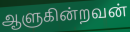
ஆளுகின்றவன்